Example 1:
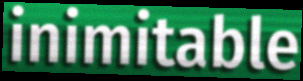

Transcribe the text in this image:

inimitable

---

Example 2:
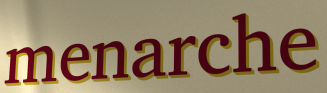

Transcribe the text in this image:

menarche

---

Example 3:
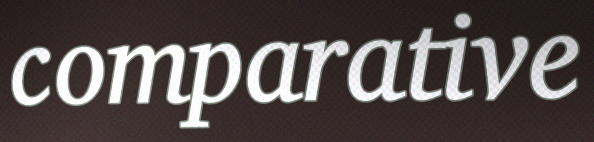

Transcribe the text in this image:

comparative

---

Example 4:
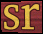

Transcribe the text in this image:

sr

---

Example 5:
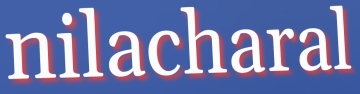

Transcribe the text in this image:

nilacharal